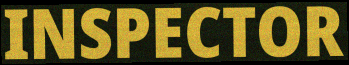
INSPECTOR